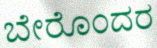
ಬೇರೊಂದರ